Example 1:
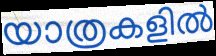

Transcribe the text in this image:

യാത്രകളിൽ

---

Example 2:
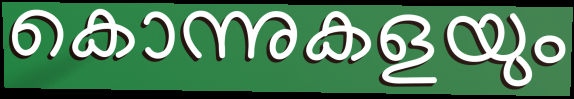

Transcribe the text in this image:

കൊന്നുകളയും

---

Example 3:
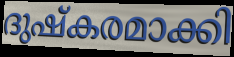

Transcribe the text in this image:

ദുഷ്കരമാക്കി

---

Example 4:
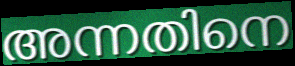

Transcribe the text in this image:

അന്നതിനെ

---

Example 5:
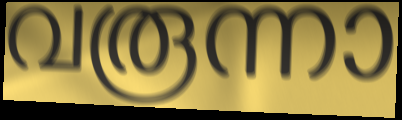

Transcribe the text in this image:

വരൂന്നാ